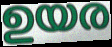
ഉയര